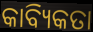
କାବ୍ୟିକତା